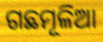
ଗଛମୂଳିଆ